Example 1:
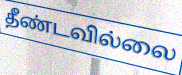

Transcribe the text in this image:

தீண்டவில்லை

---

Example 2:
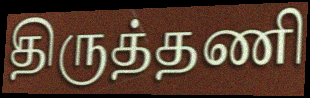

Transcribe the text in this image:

திருத்தணி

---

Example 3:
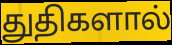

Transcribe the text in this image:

துதிகளால்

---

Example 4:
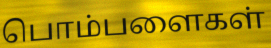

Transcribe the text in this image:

பொம்பளைகள்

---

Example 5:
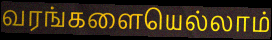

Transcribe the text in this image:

வரங்களையெல்லாம்